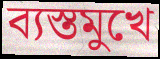
ব্যস্তমুখে